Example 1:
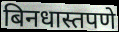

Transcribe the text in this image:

बिनधास्तपणे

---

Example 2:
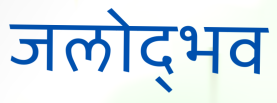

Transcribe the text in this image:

जलोद्भव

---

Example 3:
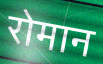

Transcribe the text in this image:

रोमान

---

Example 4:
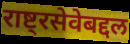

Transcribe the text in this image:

राष्ट्रसेवेबद्दल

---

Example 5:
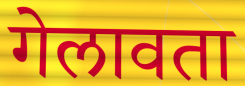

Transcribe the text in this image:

गेलावता